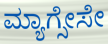
ಮ್ಯಾಗ್ಸೇಸೇ